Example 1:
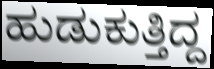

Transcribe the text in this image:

ಹುಡುಕುತ್ತಿದ್ದ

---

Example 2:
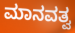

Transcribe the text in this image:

ಮಾನವತ್ವ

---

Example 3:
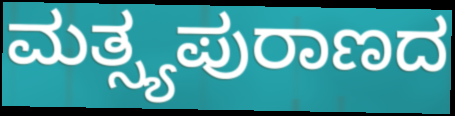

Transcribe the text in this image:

ಮತ್ಸ್ಯಪುರಾಣದ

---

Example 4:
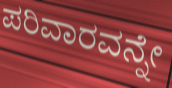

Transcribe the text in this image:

ಪರಿವಾರವನ್ನೇ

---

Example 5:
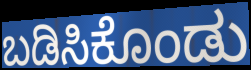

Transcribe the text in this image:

ಬಡಿಸಿಕೊಂಡು